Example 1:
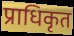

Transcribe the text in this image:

प्राधिकृत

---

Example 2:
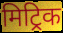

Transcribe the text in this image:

मिट्रिक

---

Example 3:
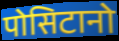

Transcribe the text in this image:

पोसिटानो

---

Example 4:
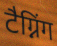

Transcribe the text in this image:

टैग्निंग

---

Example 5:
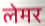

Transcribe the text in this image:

लेमर